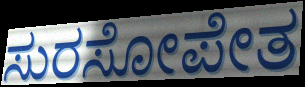
ಸುರಸೋಪೇತ